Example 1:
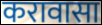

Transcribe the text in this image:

करावासा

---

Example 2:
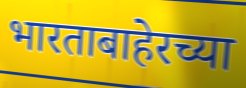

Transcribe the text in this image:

भारताबाहेरच्या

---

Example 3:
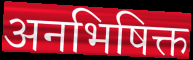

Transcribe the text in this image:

अनभिषिक्त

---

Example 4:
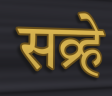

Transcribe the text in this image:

सव्र्हे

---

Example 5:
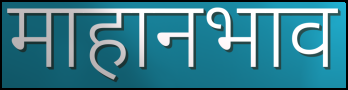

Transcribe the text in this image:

माहानभाव